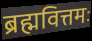
ब्रह्मवित्तमः